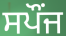
ਸਪੌਂਜ